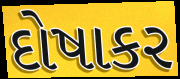
દોષાકર